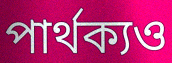
পার্থক্যও